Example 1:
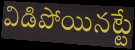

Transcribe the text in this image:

విడిపోయినట్టే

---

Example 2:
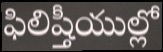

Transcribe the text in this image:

ఫిలిష్తీయుల్లో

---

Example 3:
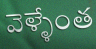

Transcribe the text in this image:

వెళ్ళేంత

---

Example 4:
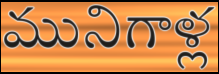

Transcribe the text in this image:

మునిగాళ్ల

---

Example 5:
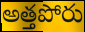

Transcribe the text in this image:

అత్తపోరు